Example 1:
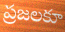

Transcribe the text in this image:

ప్రజలకూ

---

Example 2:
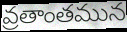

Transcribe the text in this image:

వ్రతాంతమున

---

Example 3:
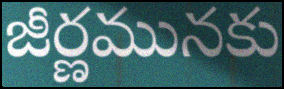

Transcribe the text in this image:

జీర్ణమునకు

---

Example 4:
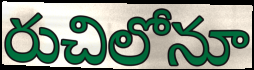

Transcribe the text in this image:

రుచిలోనూ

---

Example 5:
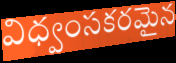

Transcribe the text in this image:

విధ్వంసకరమైన